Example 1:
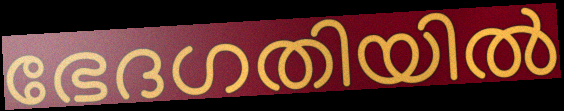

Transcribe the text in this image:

ഭേദഗതിയിൽ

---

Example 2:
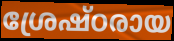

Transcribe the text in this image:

ശ്രേഷ്ഠരായ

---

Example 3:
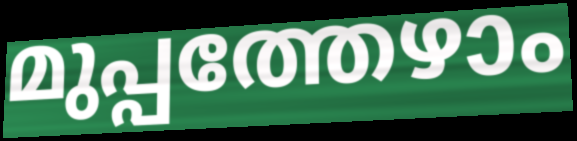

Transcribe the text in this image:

മുപ്പത്തേഴാം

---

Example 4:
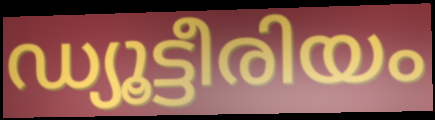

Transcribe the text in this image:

ഡ്യൂട്ടീരിയം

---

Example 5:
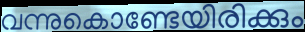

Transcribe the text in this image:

വന്നുകൊണ്ടേയിരിക്കും